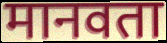
मानवता